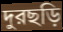
দুরছড়ি